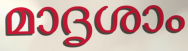
മാദൃശാം